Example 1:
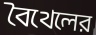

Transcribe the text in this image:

বৈথেলের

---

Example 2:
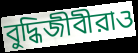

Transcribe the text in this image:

বুদ্ধিজীবীরাও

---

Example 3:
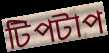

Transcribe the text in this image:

টিপটাপ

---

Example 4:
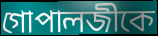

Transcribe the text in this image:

গোপালজীকে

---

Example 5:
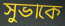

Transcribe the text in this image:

সুভাকে